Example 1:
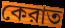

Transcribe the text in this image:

কেরাত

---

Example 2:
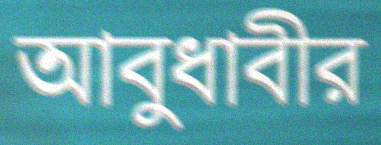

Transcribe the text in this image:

আবুধাবীর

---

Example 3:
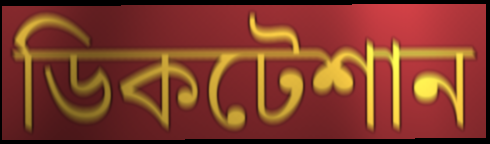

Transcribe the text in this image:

ডিকটেশান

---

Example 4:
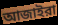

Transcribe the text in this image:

আজাইরা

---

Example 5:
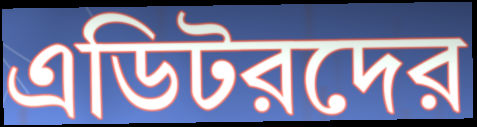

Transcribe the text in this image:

এডিটরদের